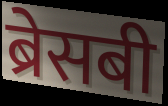
ब्रेसबी